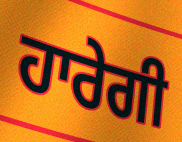
ਹਾਰੇਗੀ